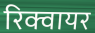
रिक्वायर